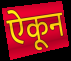
ऐकून